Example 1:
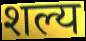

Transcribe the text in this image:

शल्य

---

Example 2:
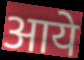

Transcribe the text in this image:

आये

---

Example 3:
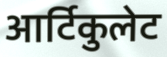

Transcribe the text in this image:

आर्टिकुलेट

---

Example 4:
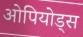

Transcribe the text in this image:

ओपियोड्स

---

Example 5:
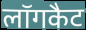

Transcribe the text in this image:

लॉगकैट